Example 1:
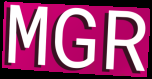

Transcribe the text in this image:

MGR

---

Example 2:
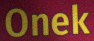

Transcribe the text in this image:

Onek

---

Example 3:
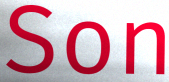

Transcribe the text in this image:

Son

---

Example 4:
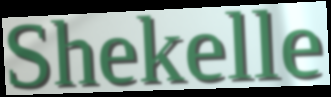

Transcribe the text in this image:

Shekelle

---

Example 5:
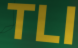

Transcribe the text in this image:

TLI